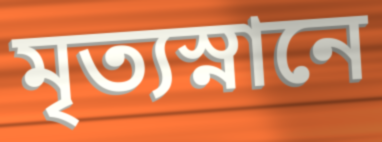
মৃত্যস্নানে